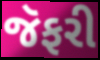
જૅફરી